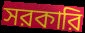
সরকারি